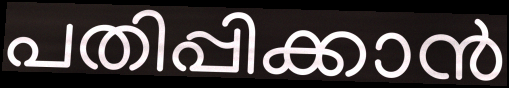
പതിപ്പിക്കാൻ